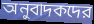
অনুবাদকদের